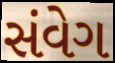
સંવેગ